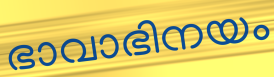
ഭാവാഭിനയം